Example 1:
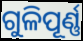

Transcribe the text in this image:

ଗୁଳିପୂର୍ଣ୍ଣ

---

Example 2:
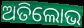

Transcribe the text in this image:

ଅତିଲୋଭ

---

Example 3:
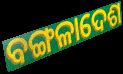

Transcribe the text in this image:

ବଙ୍ଗଳାଦେଶ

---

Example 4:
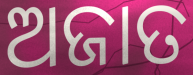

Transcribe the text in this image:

ଅଜାତ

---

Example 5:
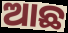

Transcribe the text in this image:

ଆଛ